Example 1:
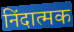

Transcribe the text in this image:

निंदात्मक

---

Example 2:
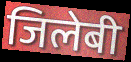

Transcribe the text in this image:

जिलेबी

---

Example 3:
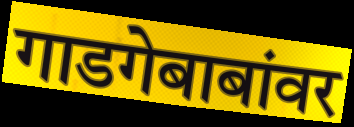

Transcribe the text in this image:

गाडगेबाबांवर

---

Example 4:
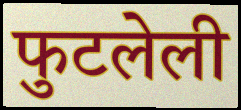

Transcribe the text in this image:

फुटलेली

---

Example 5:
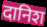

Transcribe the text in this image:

दानिश